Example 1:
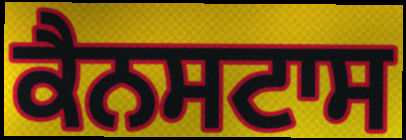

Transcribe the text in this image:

ਕੈਨਸਟਾਸ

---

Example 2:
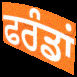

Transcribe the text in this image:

ਫਰੰਡਾਂ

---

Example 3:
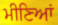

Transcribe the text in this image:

ਮੀਣਿਆਂ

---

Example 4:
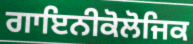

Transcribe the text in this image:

ਗਾਇਨੀਕੋਲੋਜਿਕ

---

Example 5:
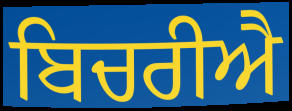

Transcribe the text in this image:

ਬਿਚਰੀਐ